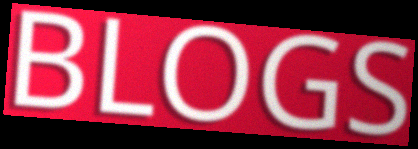
BLOGS